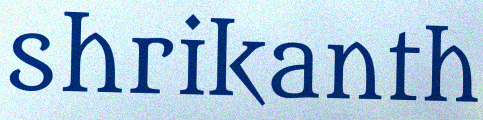
shrikanth